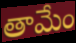
తామేం